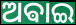
ଅଵାଇ